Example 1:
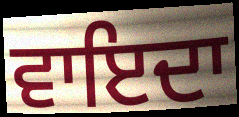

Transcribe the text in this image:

ਵਾਇਦਾ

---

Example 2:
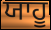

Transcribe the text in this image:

ਯਾਹੂ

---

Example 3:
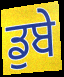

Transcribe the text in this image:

ਡੁਬੇ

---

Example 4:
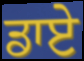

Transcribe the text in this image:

ਡਾਏ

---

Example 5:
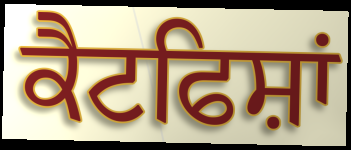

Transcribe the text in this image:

ਕੈਟਫਿਸ਼ਾਂ